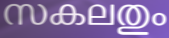
സകലതും